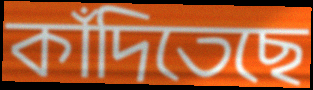
কাঁদিতেছে